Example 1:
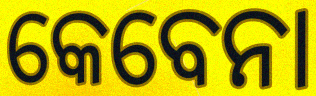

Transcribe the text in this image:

କେବେନା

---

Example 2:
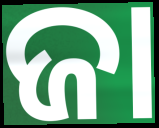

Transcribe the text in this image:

ଜା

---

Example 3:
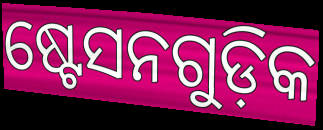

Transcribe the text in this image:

ଷ୍ଟେସନଗୁଡ଼ିକ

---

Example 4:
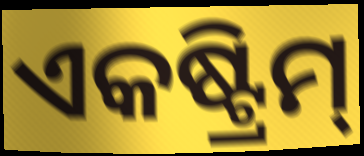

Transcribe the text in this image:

ଏକଷ୍ଟ୍ରିମ୍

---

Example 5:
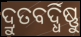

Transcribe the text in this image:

ଦ୍ରୁତବର୍ଦ୍ଧିଷ୍ଣୁ